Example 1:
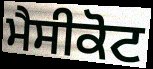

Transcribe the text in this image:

ਮੈਸੀਕੋਟ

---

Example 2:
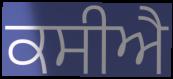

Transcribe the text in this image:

ਕਸੀਐ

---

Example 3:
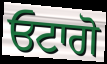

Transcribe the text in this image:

ਓਟਾਗੋ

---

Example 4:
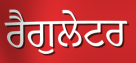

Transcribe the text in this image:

ਰੈਗੁਲੇਟਰ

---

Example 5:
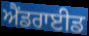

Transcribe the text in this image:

ਐਂਡਰਾਈਡ